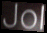
Jol